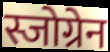
स्जोग्रेन